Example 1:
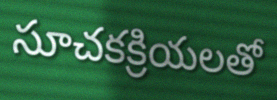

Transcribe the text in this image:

సూచకక్రియలతో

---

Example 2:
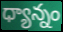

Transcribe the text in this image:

ధ్యాన్నం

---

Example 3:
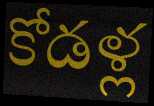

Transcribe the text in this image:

కోడళ్ల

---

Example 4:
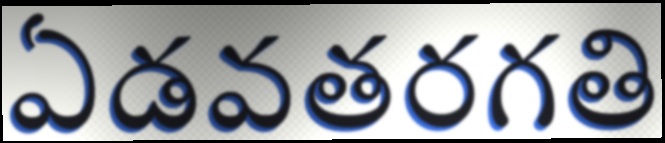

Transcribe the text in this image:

ఏడవతరగతి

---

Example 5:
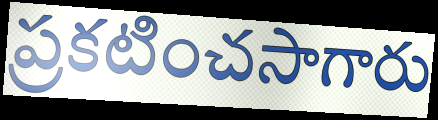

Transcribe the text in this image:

ప్రకటించసాగారు